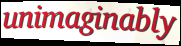
unimaginably